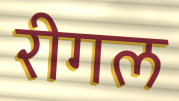
रीगल